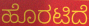
ಹೊರಟಿದೆ